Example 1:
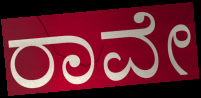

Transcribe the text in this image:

ರಾವೇ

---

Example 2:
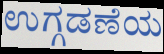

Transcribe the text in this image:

ಉಗ್ಗಡಣೆಯ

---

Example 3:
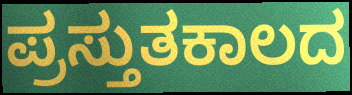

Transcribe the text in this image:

ಪ್ರಸ್ತುತಕಾಲದ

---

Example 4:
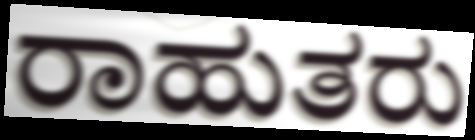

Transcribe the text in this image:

ರಾಹುತರು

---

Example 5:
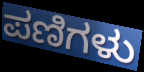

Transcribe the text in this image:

ಪಣಿಗಳು